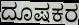
ದೂಷಕರ